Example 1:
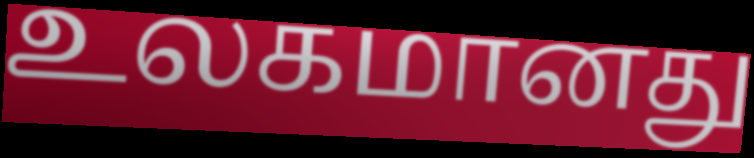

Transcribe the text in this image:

உலகமானது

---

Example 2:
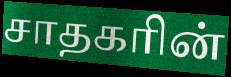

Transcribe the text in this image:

சாதகரின்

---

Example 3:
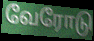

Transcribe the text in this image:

வேரோடு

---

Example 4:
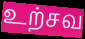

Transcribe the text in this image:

உற்சவ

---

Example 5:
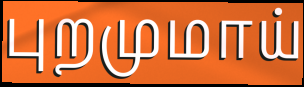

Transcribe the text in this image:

புறமுமாய்